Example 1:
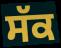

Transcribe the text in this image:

ਸੱਕ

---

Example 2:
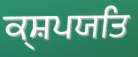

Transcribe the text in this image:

ਕ੍ਸ਼ਪਯਤਿ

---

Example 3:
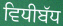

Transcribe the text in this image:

ਵਿਧੀਬੱਧ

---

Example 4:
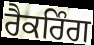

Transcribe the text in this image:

ਰੈਕਰਿੰਗ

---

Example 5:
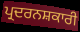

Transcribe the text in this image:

ਪ੍ਰਦਰਨਸ਼ਕਾਰੀ